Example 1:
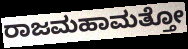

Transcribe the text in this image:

ರಾಜಮಹಾಮತ್ತೋ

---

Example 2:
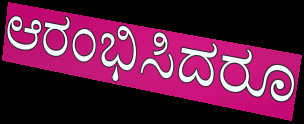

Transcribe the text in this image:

ಆರಂಭಿಸಿದರೂ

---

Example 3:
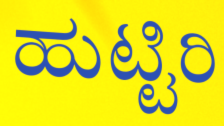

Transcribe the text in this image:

ಹುಟ್ಟಿರಿ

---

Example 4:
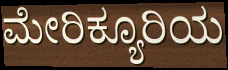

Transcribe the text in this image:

ಮೇರಿಕ್ಯೂರಿಯ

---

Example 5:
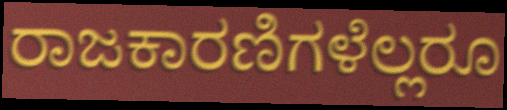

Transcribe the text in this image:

ರಾಜಕಾರಣಿಗಳೆಲ್ಲರೂ